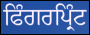
ਫਿੰਗਰਪ੍ਰਿੰਟ